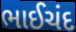
ભાઈચંદ